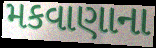
મકવાણાના